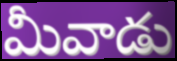
మీవాడు